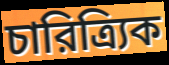
চারিত্র্যিক